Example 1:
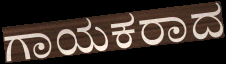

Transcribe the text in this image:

ಗಾಯಕರಾದ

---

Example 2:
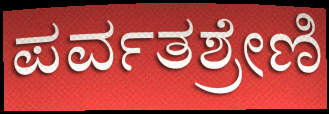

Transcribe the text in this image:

ಪರ್ವತಶ್ರೇಣಿ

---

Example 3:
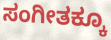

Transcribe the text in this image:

ಸಂಗೀತಕ್ಕೂ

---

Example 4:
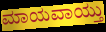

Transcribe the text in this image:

ಮಾಯವಾಯ್ತು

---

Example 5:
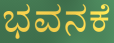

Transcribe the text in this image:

ಭವನಕೆ